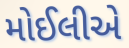
મોઈલીએ